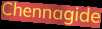
Chennagide